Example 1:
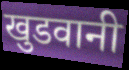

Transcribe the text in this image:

खुडवानी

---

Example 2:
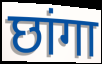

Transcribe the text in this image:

छांगा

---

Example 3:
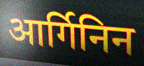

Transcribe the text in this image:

आर्गिनिन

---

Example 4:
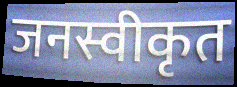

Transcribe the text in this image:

जनस्वीकृत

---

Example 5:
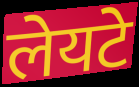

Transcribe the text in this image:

लेयटे